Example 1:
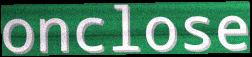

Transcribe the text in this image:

onclose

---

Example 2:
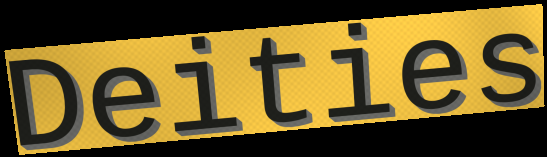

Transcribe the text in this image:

Deities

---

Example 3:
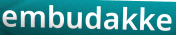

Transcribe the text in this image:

embudakke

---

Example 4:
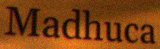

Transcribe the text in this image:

Madhuca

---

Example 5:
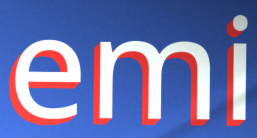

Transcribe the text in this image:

emi